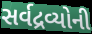
સર્વદ્રવ્યોની